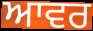
ਆਵਰ